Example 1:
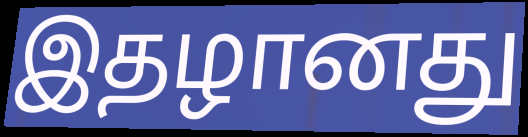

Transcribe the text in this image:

இதழானது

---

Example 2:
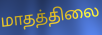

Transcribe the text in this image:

மாதத்திலை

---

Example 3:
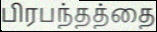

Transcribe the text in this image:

பிரபந்தத்தை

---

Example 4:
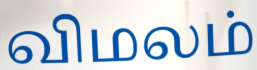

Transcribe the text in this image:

விமலம்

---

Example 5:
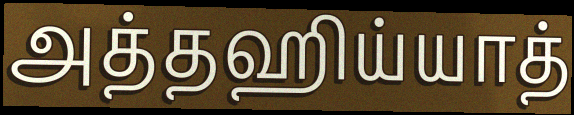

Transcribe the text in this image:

அத்தஹிய்யாத்